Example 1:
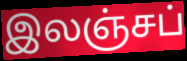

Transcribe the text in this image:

இலஞ்சப்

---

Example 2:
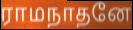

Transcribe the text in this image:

ராமநாதனே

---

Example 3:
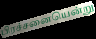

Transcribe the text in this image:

பிரச்சனையென்று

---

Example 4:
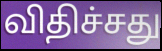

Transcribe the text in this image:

விதிச்சது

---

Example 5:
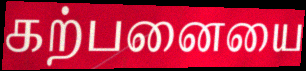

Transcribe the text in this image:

கற்பனையை